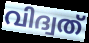
വിദ്വത്